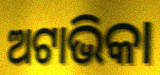
ଅଟାଭିକା